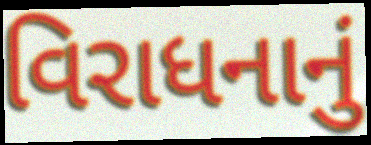
વિરાધનાનું